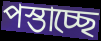
পস্তাচ্ছে